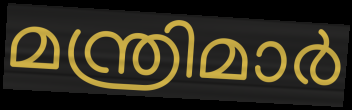
മന്ത്രിമാർ